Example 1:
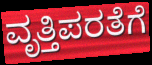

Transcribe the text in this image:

ವೃತ್ತಿಪರತೆಗೆ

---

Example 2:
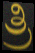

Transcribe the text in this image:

ತ್ರಿ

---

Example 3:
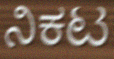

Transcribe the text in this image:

ನಿಕಟ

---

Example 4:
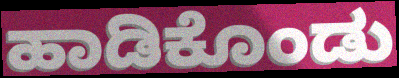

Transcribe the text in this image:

ಹಾಡಿಕೊಂಡು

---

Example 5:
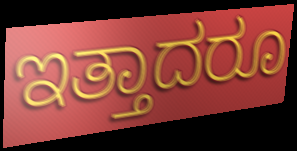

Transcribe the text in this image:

ಇತ್ತಾದರೂ